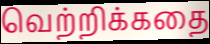
வெற்றிக்கதை